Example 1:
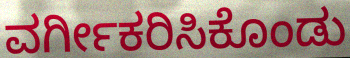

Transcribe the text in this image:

ವರ್ಗೀಕರಿಸಿಕೊಂಡು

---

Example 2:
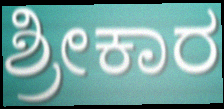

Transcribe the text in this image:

ಶ್ರೀಕಾರ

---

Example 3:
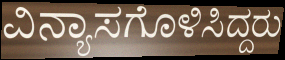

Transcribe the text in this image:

ವಿನ್ಯಾಸಗೊಳಿಸಿದ್ದರು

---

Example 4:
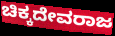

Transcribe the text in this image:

ಚಿಕ್ಕದೇವರಾಜ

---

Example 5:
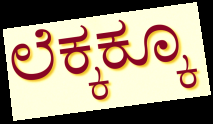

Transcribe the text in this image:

ಲೆಕ್ಕಕ್ಕೂ